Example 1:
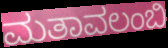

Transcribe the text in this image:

ಮತಾವಲಂಬಿ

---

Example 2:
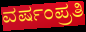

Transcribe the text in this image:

ವರ್ಷಂಪ್ರತಿ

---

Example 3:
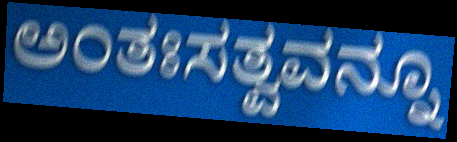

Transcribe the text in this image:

ಅಂತಃಸತ್ವವನ್ನೂ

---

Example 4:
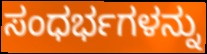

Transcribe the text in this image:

ಸಂಧರ್ಭಗಳನ್ನು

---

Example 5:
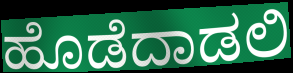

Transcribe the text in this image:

ಹೊಡೆದಾಡಲಿ